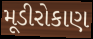
મૂડીરોકાણ